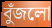
বুঁজলো